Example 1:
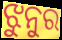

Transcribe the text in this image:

ଝୁନୁର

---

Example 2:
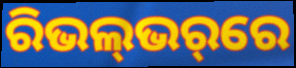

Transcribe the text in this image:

ରିଭଲ୍‌ଭର୍‌ରେ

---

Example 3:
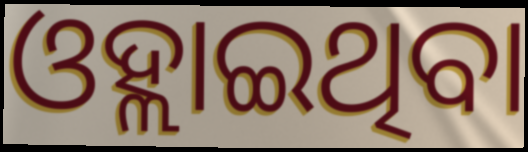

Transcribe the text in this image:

ଓହ୍ଲାଇଥିବା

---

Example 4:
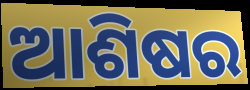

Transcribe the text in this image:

ଆଶିଷର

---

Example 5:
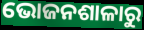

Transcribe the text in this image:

ଭୋଜନଶାଳାରୁ